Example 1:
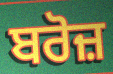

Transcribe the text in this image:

ਬਰੋਜ਼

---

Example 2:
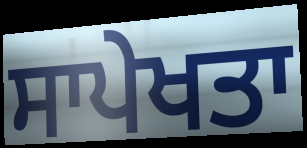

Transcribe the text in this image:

ਸਾਪੇਖਤਾ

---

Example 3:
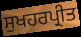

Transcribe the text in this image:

ਸੁਖਹਰਪ੍ਰੀਤ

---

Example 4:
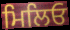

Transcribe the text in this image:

ਮਿਲਿਓ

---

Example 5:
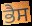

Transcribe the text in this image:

ਭੈਸ